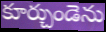
కూర్చుండెను